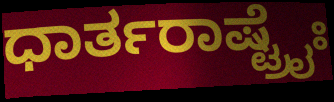
ಧಾರ್ತರಾಷ್ಟ್ರೈಃ